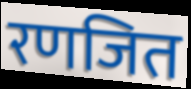
रणजित